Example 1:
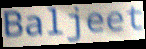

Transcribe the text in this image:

Baljeet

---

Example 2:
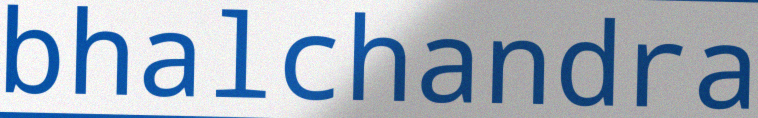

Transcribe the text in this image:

bhalchandra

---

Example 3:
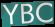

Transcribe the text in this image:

YBC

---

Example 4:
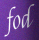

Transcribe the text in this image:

fod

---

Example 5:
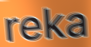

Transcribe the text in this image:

reka